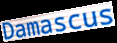
Damascus